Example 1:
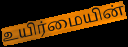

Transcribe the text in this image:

உயிர்மையின்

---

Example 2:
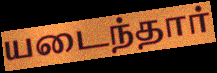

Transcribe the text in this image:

யடைந்தார்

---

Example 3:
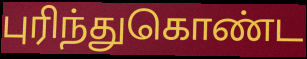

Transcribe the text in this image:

புரிந்துகொண்ட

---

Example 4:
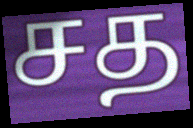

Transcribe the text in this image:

சத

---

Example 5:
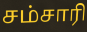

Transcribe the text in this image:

சம்சாரி